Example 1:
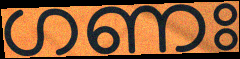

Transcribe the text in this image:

ഗണഃ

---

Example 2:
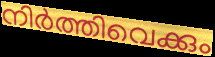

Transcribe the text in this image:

നിർത്തിവെക്കും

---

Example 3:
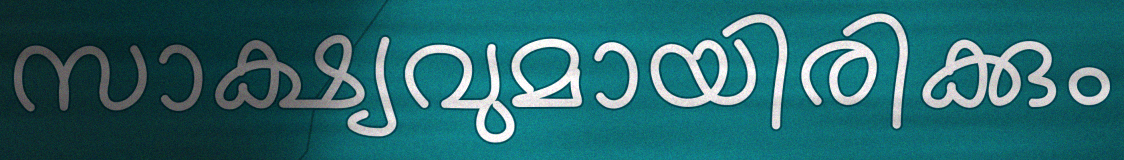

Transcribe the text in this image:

സാക്ഷ്യവുമായിരിക്കും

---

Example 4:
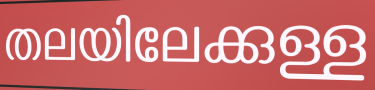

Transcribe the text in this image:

തലയിലേക്കുള്ള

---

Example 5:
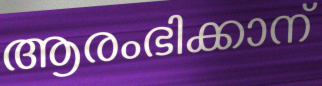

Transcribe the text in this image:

ആരംഭിക്കാന്